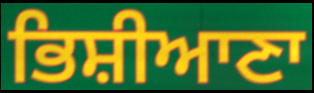
ਭਿਸ਼ੀਆਣਾ